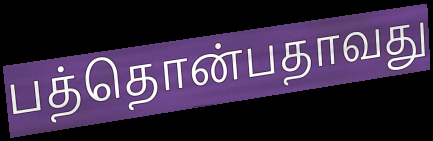
பத்தொன்பதாவது